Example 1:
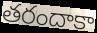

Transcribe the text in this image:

తరందాకా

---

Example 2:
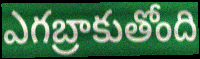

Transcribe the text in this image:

ఎగబ్రాకుతోంది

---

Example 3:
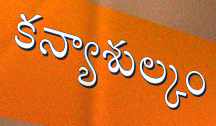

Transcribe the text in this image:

కన్యాశుల్కం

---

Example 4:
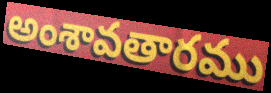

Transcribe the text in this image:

అంశావతారము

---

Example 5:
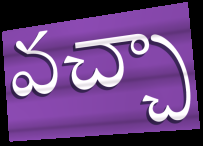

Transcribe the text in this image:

వచ్చా